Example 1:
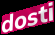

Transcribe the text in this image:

dosti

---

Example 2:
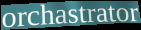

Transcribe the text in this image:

orchastrator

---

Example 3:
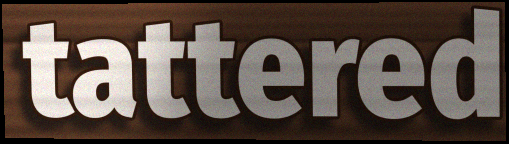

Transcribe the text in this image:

tattered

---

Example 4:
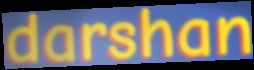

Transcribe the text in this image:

darshan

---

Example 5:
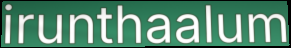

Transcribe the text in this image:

irunthaalum